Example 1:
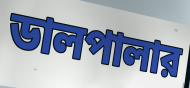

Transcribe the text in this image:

ডালপালার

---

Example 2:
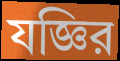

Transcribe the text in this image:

যজ্ঞির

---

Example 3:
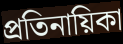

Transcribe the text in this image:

প্রতিনায়িকা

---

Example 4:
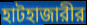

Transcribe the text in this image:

হাটহাজারীর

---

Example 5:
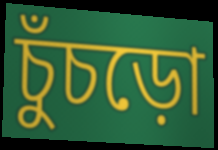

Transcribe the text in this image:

চুঁচড়ো